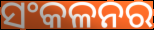
ସଂକଳନର